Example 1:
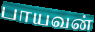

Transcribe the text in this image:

பாயவன்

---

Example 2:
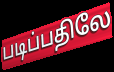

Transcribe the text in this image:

படிப்பதிலே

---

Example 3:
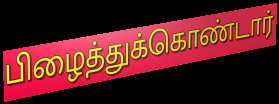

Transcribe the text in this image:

பிழைத்துக்கொண்டார்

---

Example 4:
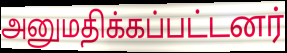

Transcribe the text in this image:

அனுமதிக்கப்பட்டனர்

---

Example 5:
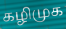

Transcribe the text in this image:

கழிமுக